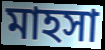
মাহসা